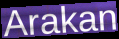
Arakan